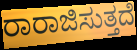
ರಾರಾಜಿಸುತ್ತದೆ